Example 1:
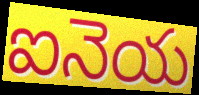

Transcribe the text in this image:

ఐనెయ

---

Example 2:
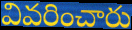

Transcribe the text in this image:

వివరించారు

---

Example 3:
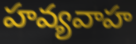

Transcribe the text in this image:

హవ్యవాహ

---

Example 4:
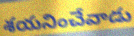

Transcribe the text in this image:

శయనించేవాడు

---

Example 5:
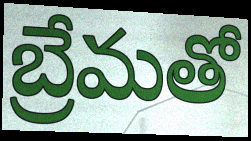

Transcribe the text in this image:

బ్రేమతో